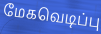
மேகவெடிப்பு